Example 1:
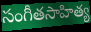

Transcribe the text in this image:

సంగీతసాహిత్య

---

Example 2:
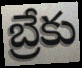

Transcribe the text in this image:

బ్రేకు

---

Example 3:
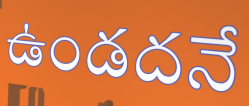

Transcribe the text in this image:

ఉండదనే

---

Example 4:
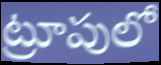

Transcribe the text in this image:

ట్రూపులో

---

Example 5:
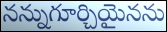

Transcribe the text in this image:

నన్నుగూర్చియైనను